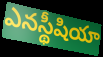
ఎనస్థీషియా